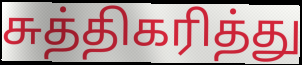
சுத்திகரித்து